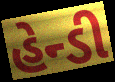
હેન્ડી